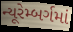
ન્યૂરેમ્બર્ગમાં